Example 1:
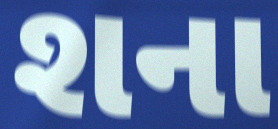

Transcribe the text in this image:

શના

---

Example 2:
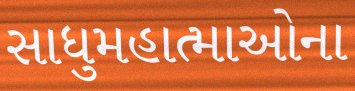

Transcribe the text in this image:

સાધુમહાત્માઓના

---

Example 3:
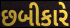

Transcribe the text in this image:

છબીકારે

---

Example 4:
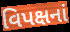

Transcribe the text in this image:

વિપક્ષનાં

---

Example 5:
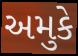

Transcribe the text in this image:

અમુકે